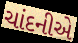
ચાંદનીએ